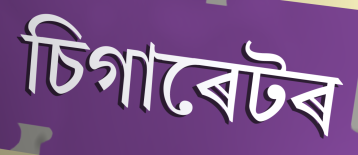
চিগাৰেটৰ